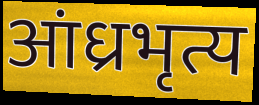
आंध्रभृत्य